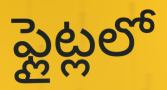
ఫ్లైట్లలో